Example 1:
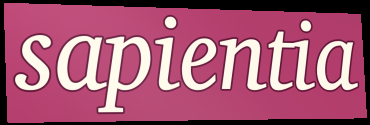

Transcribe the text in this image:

sapientia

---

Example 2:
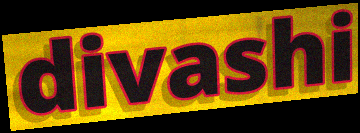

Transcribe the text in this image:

divashi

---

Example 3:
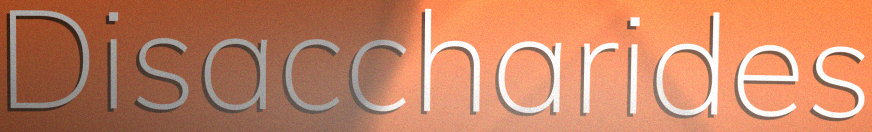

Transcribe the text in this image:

Disaccharides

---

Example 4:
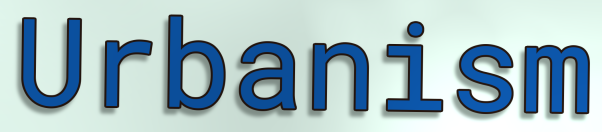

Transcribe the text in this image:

Urbanism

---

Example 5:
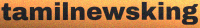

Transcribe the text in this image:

tamilnewsking